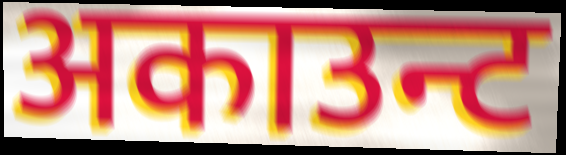
अकाउन्ट